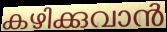
കഴിക്കുവാൻ